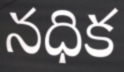
నధిక